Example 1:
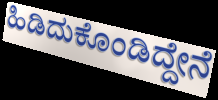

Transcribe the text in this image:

ಹಿಡಿದುಕೊಂಡಿದ್ದೇನೆ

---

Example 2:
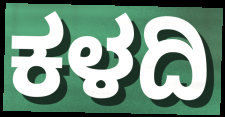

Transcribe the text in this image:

ಕಳದಿ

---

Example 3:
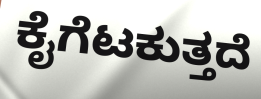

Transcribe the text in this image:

ಕೈಗೆಟಕುತ್ತದೆ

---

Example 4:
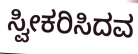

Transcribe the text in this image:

ಸ್ವೀಕರಿಸಿದವ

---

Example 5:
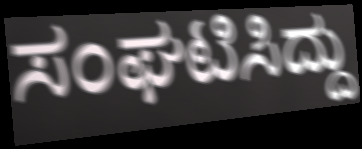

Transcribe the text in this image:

ಸಂಘಟಿಸಿದ್ದು